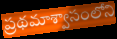
ప్రథమాశ్వాసంలోని